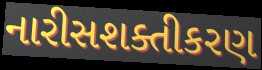
નારીસશક્તીકરણ